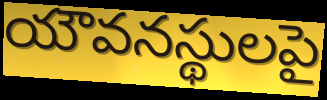
యౌవనస్థులపై